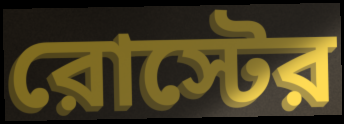
রোস্টের